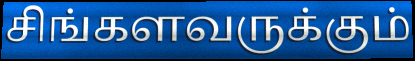
சிங்களவருக்கும்